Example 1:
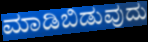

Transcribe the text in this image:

ಮಾಡಿಬಿಡುವುದು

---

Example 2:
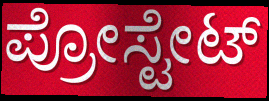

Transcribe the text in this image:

ಪ್ರೋಸ್ಟೇಟ್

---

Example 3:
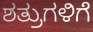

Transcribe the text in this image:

ಶತ್ರುಗಳಿಗೆ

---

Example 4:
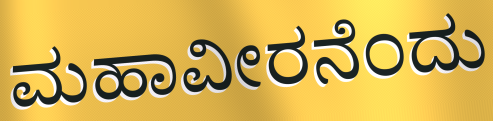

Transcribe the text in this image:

ಮಹಾವೀರನೆಂದು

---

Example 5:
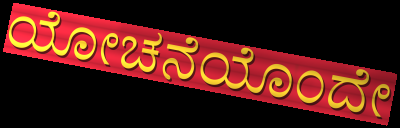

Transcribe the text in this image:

ಯೋಚನೆಯೊಂದೇ